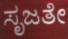
ಸೃಜತೇ